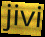
jivi